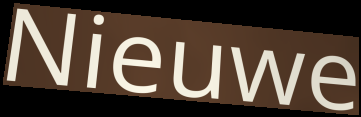
Nieuwe